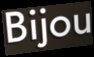
Bijou